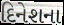
દિનેશના